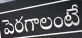
పెరగాలంటే